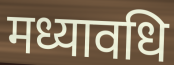
मध्यावधि